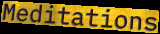
Meditations